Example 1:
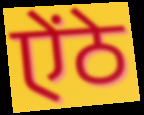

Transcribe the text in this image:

ऐंठे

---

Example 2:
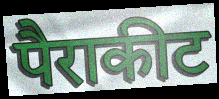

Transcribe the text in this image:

पैराकीट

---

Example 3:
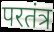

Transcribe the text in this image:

परतंत्र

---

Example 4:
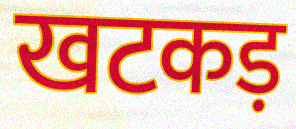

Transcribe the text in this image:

खटकड़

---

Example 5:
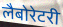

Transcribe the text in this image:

लैबोरेटरी